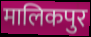
मालिकपुर